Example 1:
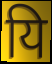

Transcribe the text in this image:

यि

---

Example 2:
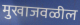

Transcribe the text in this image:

मुखाजवळील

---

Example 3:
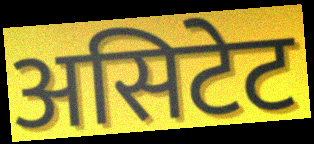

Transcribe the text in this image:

असिटेट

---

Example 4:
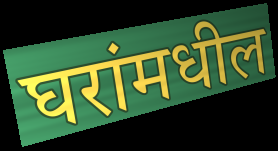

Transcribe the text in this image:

घरांमधील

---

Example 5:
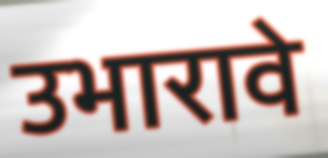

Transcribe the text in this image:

उभारावे